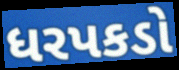
ધરપકડો